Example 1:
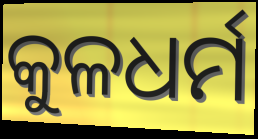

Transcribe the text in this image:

କୁଳଧର୍ମ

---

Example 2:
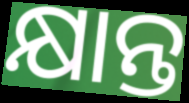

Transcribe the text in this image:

କ୍ଷାନ୍ତ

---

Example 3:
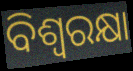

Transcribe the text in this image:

ବିଶ୍ୱରକ୍ଷା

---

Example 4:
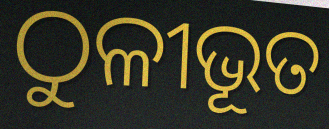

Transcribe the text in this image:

ଠୁଳୀଭୂତ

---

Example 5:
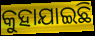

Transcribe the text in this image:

କୁହାଯାଇଛି